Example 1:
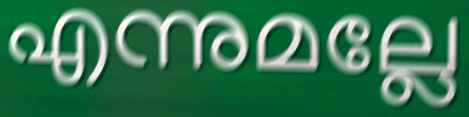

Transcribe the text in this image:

എന്നുമല്ലേ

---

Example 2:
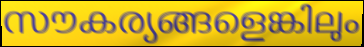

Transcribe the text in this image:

സൗകര്യങ്ങളെങ്കിലും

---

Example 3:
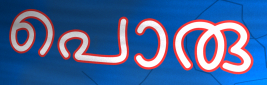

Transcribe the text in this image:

പൊരു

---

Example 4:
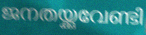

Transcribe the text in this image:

ജനതയ്ക്കുവേണ്ടി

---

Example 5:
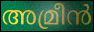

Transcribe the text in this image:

അമ്രീൻ